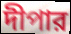
দীপার